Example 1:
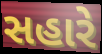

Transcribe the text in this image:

સહારે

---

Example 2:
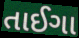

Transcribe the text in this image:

તાઈગા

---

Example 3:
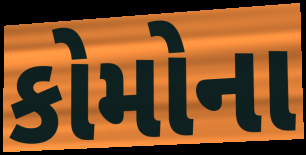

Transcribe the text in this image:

કોમોના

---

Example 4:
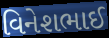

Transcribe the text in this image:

વિનેશભાઈ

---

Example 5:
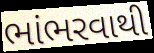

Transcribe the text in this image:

ભાંભરવાથી